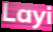
Layi